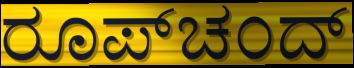
ರೂಪ್‌ಚಂದ್